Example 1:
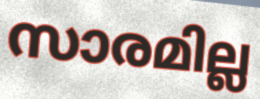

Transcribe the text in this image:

സാരമില്ല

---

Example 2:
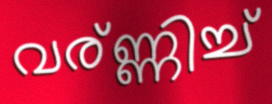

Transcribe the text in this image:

വര്ണ്ണിച്ച്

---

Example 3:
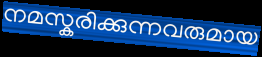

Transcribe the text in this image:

നമസ്കരിക്കുന്നവരുമായ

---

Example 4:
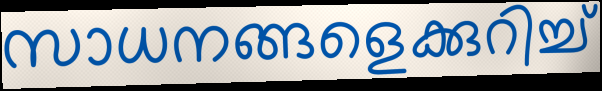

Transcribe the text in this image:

സാധനങ്ങളെക്കുറിച്ച്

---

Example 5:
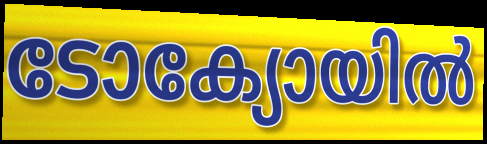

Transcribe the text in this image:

ടോക്യോയിൽ